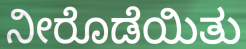
ನೀರೊಡೆಯಿತು